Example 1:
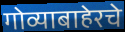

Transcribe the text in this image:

गोव्याबाहेरचे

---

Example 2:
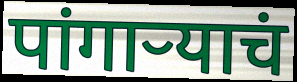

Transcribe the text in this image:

पांगाऱ्याचं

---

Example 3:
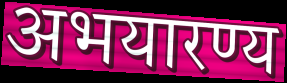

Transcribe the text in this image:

अभयारण्य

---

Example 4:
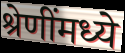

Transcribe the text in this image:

श्रेणींमध्ये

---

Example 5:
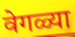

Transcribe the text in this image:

वेगळ्या